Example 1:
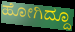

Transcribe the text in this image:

ಹೋಗಿದ್ದೂ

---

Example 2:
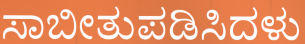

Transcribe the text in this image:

ಸಾಬೀತುಪಡಿಸಿದಳು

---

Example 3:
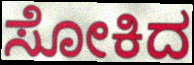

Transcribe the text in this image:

ಸೋಕಿದ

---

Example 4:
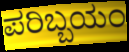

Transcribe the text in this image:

ಪರಿಬ್ಬಯಂ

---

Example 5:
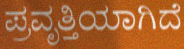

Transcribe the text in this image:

ಪ್ರವೃತ್ತಿಯಾಗಿದೆ